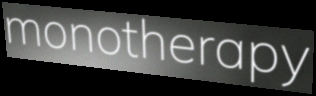
monotherapy